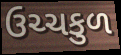
ઉચ્ચકુળ